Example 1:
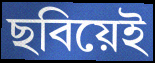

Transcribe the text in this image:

ছবিয়েই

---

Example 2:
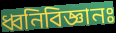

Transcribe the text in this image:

ধ্বনিবিজ্ঞানঃ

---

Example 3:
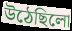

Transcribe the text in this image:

উঠেছিলো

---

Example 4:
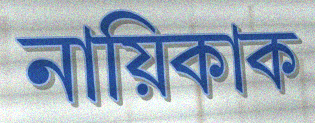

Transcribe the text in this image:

নায়িকাক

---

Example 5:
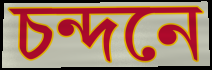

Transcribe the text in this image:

চন্দনে